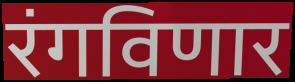
रंगविणार